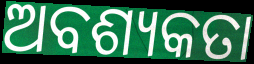
ଅବଶ୍ୟକତା